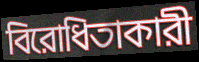
বিরোধিতাকারী